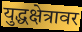
युद्धक्षेत्रावर